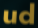
ud